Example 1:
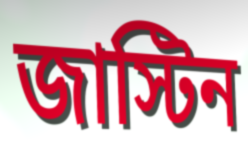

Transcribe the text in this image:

জাস্টিন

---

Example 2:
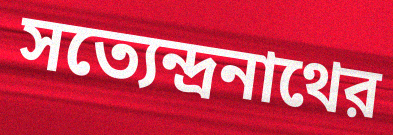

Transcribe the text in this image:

সত্যেন্দ্রনাথের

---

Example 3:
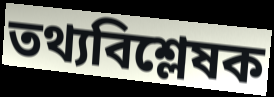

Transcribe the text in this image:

তথ্যবিশ্লেষক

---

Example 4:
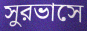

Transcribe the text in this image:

সুরভাসে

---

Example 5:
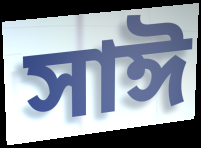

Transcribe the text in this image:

সাঈ